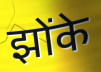
झोंके